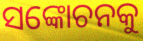
ସଙ୍କୋଚନକୁ